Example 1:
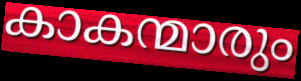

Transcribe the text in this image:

കാകന്മാരും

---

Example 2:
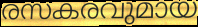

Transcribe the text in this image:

രസകരവുമായ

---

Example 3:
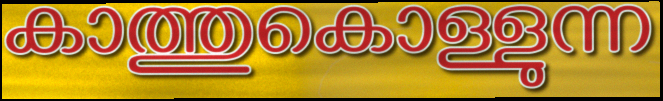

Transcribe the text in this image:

കാത്തുകൊള്ളുന്ന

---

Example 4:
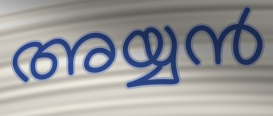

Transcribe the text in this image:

അയ്യൻ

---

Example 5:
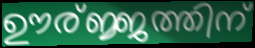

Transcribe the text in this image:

ഊര്ജ്ജത്തിന്